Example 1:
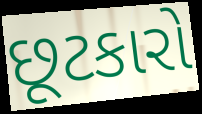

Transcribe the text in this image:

છૂટકારો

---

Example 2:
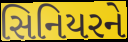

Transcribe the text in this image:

સિનિયરને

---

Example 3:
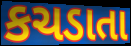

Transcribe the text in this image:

કચડાતા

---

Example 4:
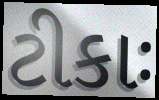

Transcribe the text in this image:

ટીકાઃ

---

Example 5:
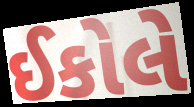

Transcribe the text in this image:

ઈકોલે